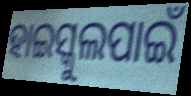
ହାଇସ୍କୁଲପାଇଁ